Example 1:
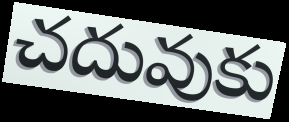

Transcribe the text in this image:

చదువుకు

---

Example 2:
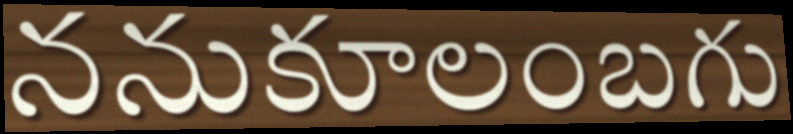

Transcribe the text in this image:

ననుకూలంబగు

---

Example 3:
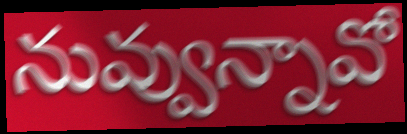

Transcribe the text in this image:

నువ్వున్నావో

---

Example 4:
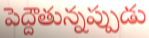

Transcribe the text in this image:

పెద్దౌతున్నప్పుడు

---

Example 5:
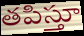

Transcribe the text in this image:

తపిస్తూ